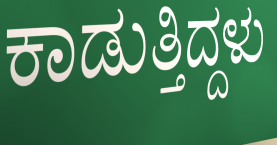
ಕಾಡುತ್ತಿದ್ದಳು